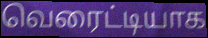
வெரைட்டியாக